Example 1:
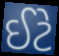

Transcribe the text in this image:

ઈટે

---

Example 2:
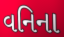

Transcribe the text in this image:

વનિના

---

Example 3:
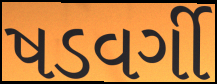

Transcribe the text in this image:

ષડવર્ગી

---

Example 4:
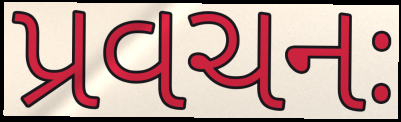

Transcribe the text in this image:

પ્રવચનઃ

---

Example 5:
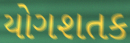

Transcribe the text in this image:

યોગશતક